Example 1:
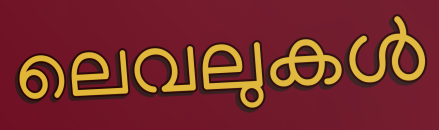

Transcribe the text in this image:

ലെവലുകൾ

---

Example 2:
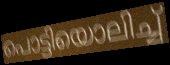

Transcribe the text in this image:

പൊട്ടിയൊലിച്ച്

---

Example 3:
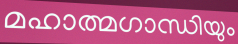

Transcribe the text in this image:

മഹാത്മഗാന്ധിയും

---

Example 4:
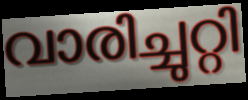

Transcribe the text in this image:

വാരിച്ചുറ്റി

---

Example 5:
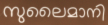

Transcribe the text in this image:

സുലൈമാനി